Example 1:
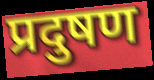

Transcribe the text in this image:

प्रदुषण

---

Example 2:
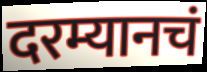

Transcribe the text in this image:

दरम्यानचं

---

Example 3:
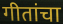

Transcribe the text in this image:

गीतांचा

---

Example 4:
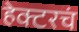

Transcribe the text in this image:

हेक्टरचं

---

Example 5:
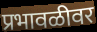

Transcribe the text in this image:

प्रभावळीवर